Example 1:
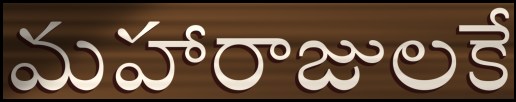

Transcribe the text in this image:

మహారాజులకే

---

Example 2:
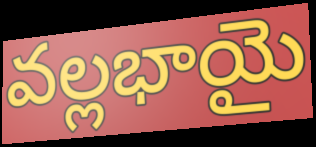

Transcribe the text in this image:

వల్లభాయై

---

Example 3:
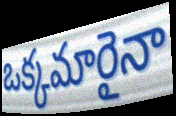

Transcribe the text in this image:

ఒక్కమారైనా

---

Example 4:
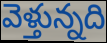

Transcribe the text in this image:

వెళ్తున్నది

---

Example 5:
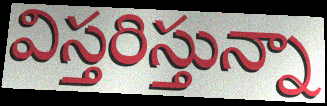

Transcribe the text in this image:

విస్తరిస్తున్నా